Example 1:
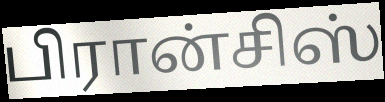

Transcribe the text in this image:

பிரான்சிஸ்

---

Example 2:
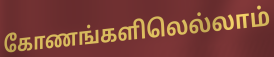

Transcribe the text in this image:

கோணங்களிலெல்லாம்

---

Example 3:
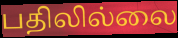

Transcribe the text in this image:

பதிலில்லை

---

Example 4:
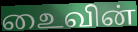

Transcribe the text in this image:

உைவின்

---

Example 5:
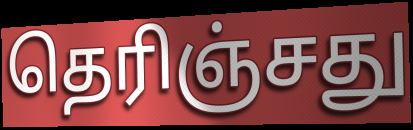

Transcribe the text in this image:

தெரிஞ்சது